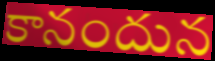
కానందున